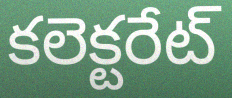
కలెక్టరేట్